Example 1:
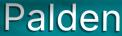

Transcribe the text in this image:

Palden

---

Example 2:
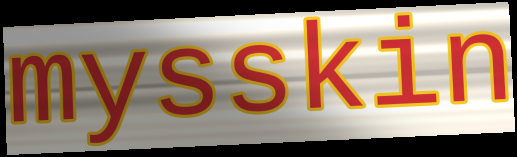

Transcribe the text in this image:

mysskin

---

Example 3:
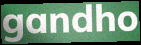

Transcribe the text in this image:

gandho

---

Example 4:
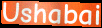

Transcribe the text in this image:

Ushabai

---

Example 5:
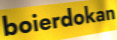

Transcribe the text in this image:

boierdokan